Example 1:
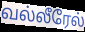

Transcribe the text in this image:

வல்லீரேல்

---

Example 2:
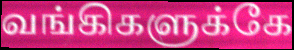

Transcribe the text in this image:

வங்கிகளுக்கே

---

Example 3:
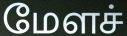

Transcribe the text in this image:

மேளச்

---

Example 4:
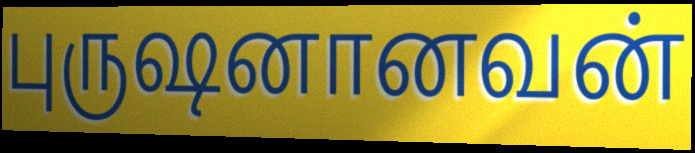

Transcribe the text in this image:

புருஷனானவன்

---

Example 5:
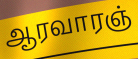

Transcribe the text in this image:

ஆரவாரஞ்